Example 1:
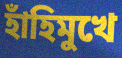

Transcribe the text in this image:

হাঁহিমুখে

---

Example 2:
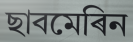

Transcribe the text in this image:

ছাবমেৰিন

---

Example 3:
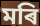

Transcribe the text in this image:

মৰি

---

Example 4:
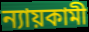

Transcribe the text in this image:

ন্যায়কামী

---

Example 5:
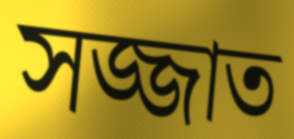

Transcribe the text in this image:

সজ্জাত